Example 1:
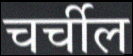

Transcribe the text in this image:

चर्चील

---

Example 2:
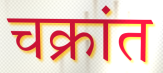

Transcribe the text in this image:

चक्रांत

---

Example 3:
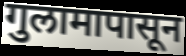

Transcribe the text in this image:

गुलामापासून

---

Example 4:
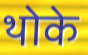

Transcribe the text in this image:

थोके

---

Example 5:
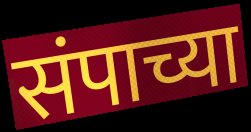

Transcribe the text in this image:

संपाच्या